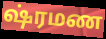
ஷ்ரமண